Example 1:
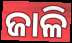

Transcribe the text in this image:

ଜାଳି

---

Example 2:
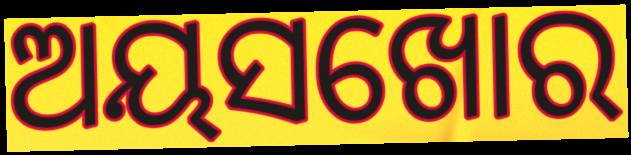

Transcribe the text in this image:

ଅୟସଖୋର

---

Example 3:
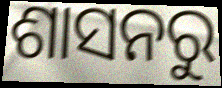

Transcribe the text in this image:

ଶାସନରୁ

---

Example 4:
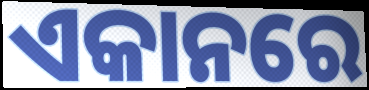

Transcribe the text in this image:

ଏକାନରେ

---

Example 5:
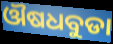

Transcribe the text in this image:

ଔଷଧବୁଡା